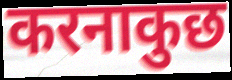
करनाकुछ